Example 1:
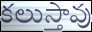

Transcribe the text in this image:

కలుస్తావు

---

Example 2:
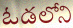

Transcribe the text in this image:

ఓడలోని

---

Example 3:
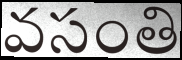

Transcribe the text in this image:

వసంతి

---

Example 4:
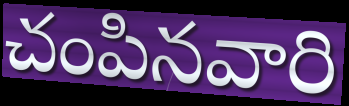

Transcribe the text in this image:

చంపినవారి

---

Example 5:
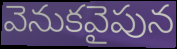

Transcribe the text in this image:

వెనుకవైపున